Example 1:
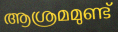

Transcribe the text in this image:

ആശ്രമമുണ്ട്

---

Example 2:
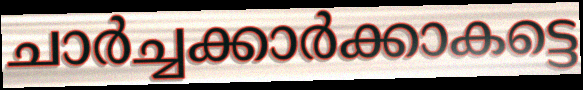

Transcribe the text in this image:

ചാർച്ചക്കാർക്കാകട്ടെ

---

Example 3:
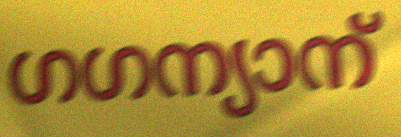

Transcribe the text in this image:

ഗഗന്യാന്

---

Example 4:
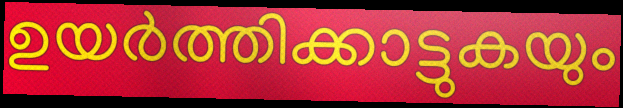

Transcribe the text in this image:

ഉയർത്തിക്കാട്ടുകയും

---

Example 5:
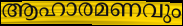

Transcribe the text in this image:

ആഹാരമണവും